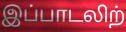
இப்பாடலிற்